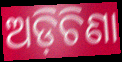
ଅଡ଼ିଚିଣା